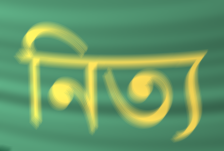
নিত্য